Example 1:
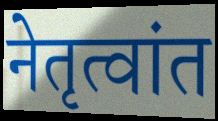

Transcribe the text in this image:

नेतृत्वांत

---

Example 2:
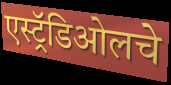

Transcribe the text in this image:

एस्ट्रॅडिओलचे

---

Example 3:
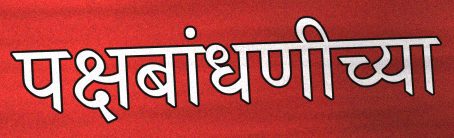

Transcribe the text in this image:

पक्षबांधणीच्या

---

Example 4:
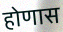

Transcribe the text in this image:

होणास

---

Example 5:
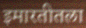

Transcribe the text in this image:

इमारतीतला